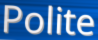
Polite